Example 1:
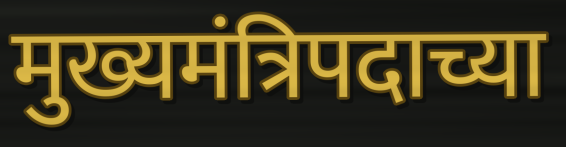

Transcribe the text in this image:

मुख्यमंत्रिपदाच्या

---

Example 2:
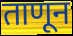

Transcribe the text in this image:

ताणून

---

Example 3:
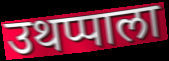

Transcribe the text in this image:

उथप्पाला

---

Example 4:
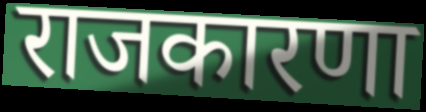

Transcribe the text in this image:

राजकारणा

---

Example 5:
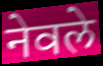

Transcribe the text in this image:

नेवले